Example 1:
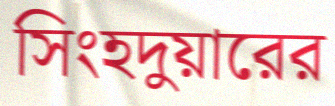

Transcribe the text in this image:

সিংহদুয়ারের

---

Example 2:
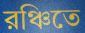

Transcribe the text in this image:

রঞ্চিতে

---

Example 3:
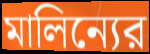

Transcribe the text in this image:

মালিন্যের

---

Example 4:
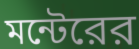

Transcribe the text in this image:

মন্টেরের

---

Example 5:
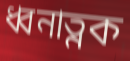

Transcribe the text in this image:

ধ্বনাত্নক